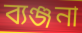
ব্যঞ্জনা